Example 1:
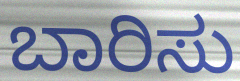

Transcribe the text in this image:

ಬಾರಿಸು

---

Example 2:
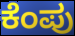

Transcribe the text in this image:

ಕೆಂಪು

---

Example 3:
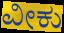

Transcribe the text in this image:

ವೀಕು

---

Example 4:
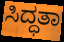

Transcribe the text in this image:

ಸಿದ್ಧತಾ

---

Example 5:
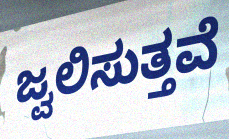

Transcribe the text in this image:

ಜ್ವಲಿಸುತ್ತವೆ